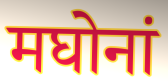
मघोनां